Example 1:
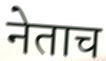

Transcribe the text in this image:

नेताच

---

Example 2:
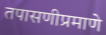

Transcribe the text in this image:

तपासणीप्रमाणे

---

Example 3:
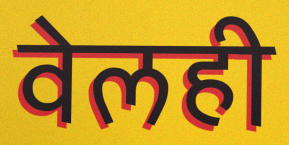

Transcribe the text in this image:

वेलही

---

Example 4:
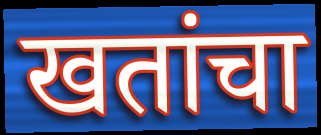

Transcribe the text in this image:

खतांचा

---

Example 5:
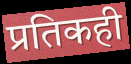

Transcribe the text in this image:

प्रतिकही